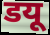
डयू